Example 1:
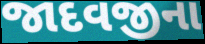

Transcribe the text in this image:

જાદવજીના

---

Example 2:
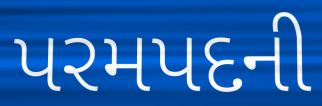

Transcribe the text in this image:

પરમપદની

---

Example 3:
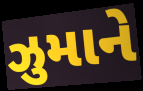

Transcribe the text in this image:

ઝુમાને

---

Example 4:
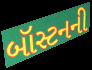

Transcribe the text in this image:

બૉસ્ટનની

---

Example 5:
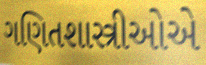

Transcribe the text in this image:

ગણિતશાસ્ત્રીઓએ